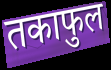
तकाफुल